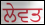
ਲੇਵਤ